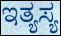
ಇತ್ಯಸ್ಯ